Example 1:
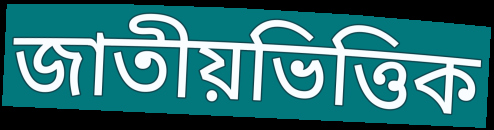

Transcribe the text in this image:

জাতীয়ভিত্তিক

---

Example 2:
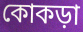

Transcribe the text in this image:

কোকড়া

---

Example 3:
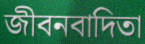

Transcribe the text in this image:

জীবনবাদিতা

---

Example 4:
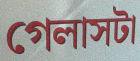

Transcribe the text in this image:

গেলাসটা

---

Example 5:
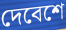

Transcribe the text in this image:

দেবেশে